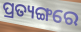
ପ୍ରତ୍ୟଙ୍ଗରେ